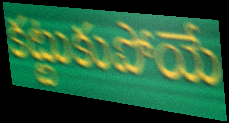
కట్టుకుపోయే